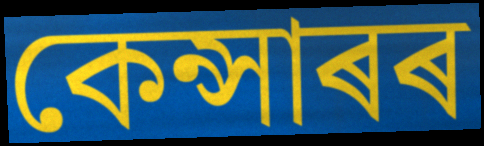
কেন্সাৰৰ